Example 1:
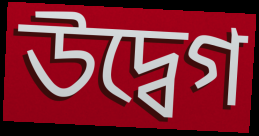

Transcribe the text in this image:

উদ্বেগ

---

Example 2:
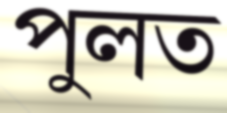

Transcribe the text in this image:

পুলত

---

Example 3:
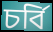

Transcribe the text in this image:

চৰ্বি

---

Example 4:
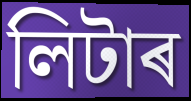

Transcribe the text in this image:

লিটাৰ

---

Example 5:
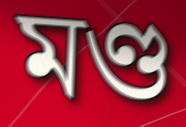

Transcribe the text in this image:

মণ্ড